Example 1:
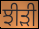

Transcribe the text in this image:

ਝੀੜੀ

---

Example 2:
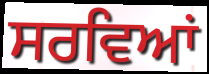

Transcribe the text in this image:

ਸਰਵਿਆਂ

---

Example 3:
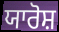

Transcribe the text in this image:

ਯਾਰੋਸ਼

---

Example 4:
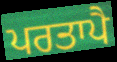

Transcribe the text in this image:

ਪਰਤਾਪੈ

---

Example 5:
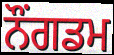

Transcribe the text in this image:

ਨੌਂਗਡਮ